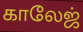
காலேஜ்